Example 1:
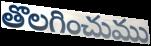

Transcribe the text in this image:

తొలగించుము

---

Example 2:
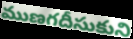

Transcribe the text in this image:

ముణగదీసుకుని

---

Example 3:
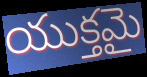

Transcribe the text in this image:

యుక్తమై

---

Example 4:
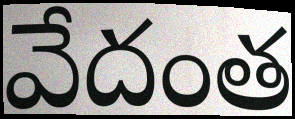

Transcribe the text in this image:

వేదంత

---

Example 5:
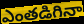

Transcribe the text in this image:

ఎంతడిగినా